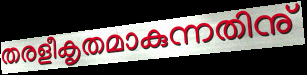
തരളീകൃതമാകുന്നതിനു്